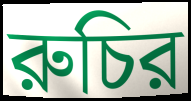
রুচির